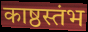
काष्ठस्तंभ